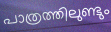
പാത്രത്തിലുണ്ടും